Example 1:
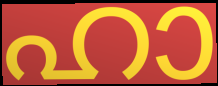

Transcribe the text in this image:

ഹാ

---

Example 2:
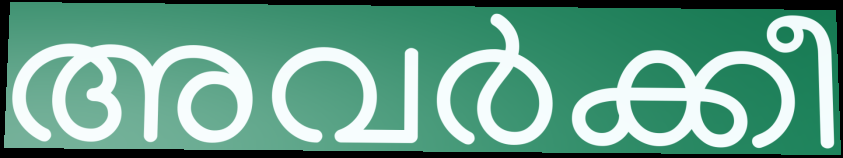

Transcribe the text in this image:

അവർക്കീ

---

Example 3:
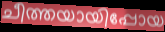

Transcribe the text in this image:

ചീത്തയായിപ്പോയ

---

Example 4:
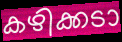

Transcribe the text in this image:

കഴിക്കടാ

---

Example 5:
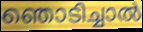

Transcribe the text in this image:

ഞൊടിച്ചാൽ